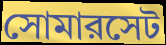
সোমারসেট